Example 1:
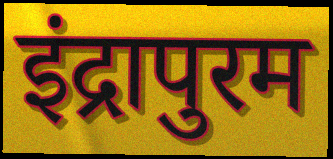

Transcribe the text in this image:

इंद्रापुरम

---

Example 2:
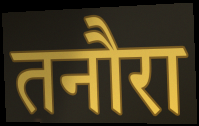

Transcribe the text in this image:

तनौरा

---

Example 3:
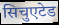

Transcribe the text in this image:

सिचुएटेड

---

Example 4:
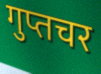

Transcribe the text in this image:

गुप्तचर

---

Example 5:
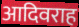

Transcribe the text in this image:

आदिवराह